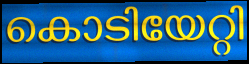
കൊടിയേറ്റി